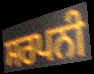
ਸਰਪਨੀ